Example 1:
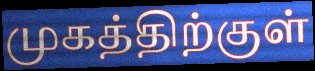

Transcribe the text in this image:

முகத்திற்குள்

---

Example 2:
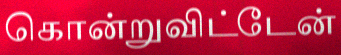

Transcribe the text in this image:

கொன்றுவிட்டேன்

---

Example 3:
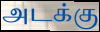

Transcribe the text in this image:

அடக்கு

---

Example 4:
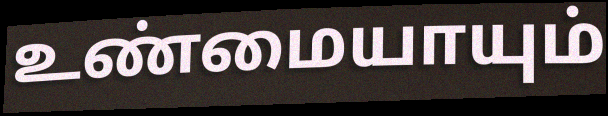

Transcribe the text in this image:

உண்மையாயும்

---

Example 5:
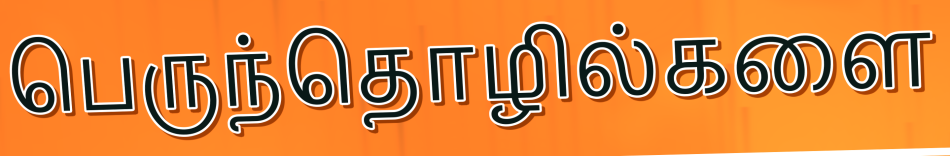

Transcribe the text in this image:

பெருந்தொழில்களை